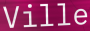
Ville